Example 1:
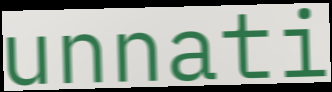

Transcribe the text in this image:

unnati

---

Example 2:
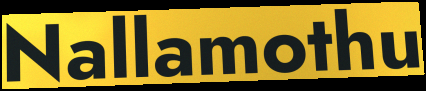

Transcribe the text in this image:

Nallamothu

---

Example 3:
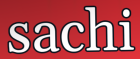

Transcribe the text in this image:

sachi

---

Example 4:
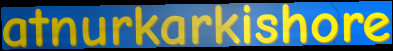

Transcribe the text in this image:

atnurkarkishore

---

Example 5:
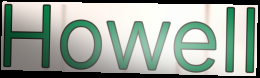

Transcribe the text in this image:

Howell